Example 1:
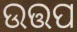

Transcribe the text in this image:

ଉତ୍ତପ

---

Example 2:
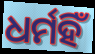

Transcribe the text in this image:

ଧର୍ମହିଁ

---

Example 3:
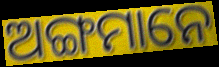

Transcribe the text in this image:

ଅଙ୍ଗମାନେ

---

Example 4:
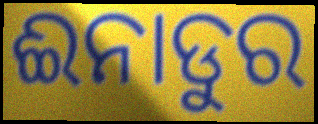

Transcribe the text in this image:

ଈନାଡୁର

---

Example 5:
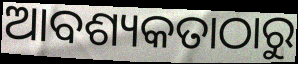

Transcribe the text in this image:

ଆବଶ୍ୟକତାଠାରୁ